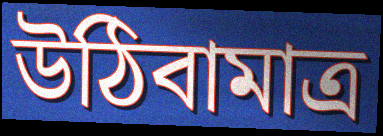
উঠিবামাত্র